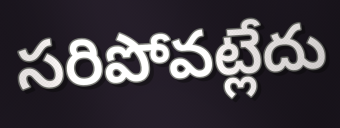
సరిపోవట్లేదు